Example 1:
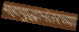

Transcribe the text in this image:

महायुद्धानंतरच्या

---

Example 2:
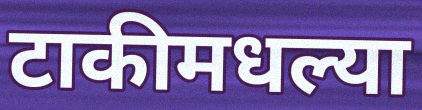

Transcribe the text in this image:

टाकीमधल्या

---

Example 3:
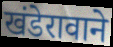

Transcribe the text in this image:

खंडेरावाने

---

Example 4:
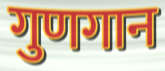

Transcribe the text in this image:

गुणगान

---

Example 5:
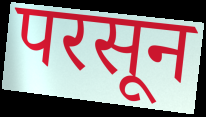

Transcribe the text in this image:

परसून